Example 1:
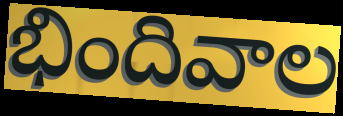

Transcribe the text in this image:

భిందివాల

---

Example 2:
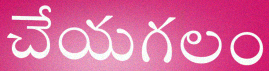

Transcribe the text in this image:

చేయగలం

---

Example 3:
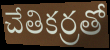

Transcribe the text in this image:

చేతికర్రతో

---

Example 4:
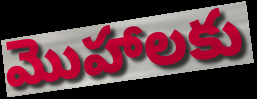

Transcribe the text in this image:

మొహాలకు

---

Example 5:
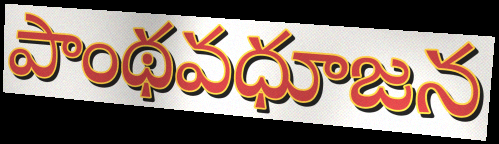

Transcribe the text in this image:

పాంథవధూజన